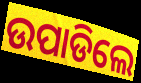
ଉପାଡିଲେ